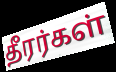
தீரர்கள்